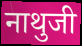
नाथुजी